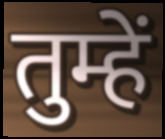
तुम्‍हें